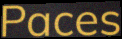
Paces